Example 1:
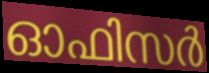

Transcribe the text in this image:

ഓഫിസർ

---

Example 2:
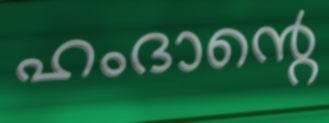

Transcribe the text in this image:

ഹംദാന്റെ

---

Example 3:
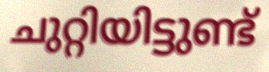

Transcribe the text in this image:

ചുറ്റിയിട്ടുണ്ട്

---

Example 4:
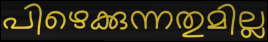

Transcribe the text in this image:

പിഴെക്കുന്നതുമില്ല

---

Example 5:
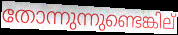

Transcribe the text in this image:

തോന്നുന്നുണ്ടെങ്കില്